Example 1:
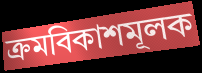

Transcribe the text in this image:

ক্রমবিকাশমূলক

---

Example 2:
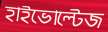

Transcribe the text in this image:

হাইভোল্টেজ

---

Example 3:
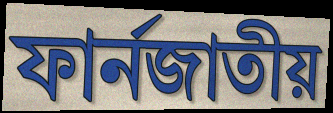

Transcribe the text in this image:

ফার্নজাতীয়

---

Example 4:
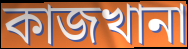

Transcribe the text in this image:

কাজখানা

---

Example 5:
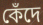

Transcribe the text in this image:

কেঁদে